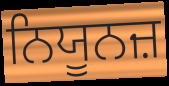
ਨਿਯੂਨਜ਼